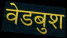
वेडबुश